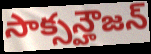
సాక్సన్హౌజన్